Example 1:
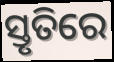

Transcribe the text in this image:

ସ୍ତୃତିରେ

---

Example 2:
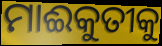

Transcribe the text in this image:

ମାଈକୁତୀକୁ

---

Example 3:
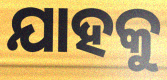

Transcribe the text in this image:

ଯାହକୁ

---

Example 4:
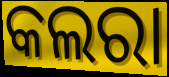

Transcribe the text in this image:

କଲରା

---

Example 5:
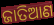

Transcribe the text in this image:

ଜାତିଆଣ